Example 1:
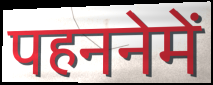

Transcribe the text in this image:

पहननेमें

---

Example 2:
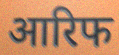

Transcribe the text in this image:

आरिफ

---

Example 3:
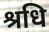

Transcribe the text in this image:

श्रधि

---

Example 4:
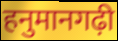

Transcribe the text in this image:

हनुमानगढ़ी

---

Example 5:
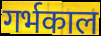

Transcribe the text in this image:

गर्भकाल